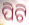
ପିଟି